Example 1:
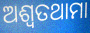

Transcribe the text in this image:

ଅଶ୍ୱତଥାମା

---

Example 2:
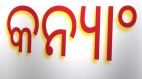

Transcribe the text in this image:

କନ୍ୟାଂ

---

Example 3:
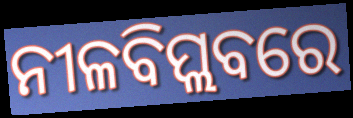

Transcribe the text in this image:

ନୀଳବିପ୍ଲବରେ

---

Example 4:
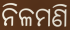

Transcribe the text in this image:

ନିଳମଣି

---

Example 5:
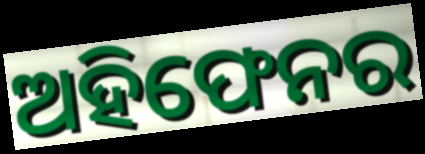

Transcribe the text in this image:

ଅହିଫେନର